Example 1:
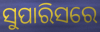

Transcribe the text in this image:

ସୁପାରିସରେ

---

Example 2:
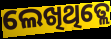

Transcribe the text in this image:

ଲେଖିଥିତ୍ଲେ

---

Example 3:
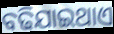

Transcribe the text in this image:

ବଢିଯାଇଥାଏ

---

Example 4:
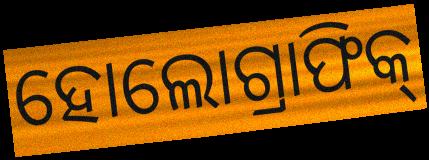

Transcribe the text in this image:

ହୋଲୋଗ୍ରାଫିକ୍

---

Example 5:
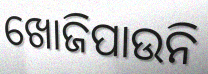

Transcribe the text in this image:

ଖୋଜିପାଉନି